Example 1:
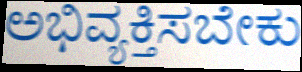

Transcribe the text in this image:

ಅಭಿವ್ಯಕ್ತಿಸಬೇಕು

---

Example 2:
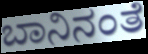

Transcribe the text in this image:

ಬಾನಿನಂತೆ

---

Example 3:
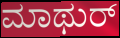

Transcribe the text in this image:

ಮಾಥುರ್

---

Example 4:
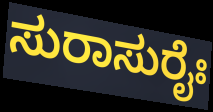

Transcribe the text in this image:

ಸುರಾಸುರೈಃ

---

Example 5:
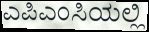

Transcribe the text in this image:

ಎಪಿಎಂಸಿಯಲ್ಲಿ